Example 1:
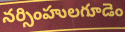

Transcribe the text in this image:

నర్సింహులగూడెం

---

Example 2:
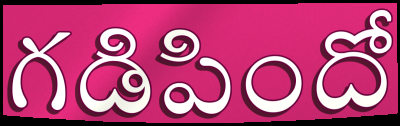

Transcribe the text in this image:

గడిపిందో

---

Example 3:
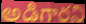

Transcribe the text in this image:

అడిగారని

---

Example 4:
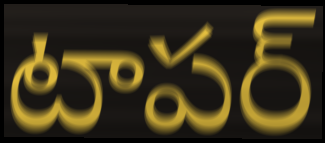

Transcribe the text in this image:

టాపర్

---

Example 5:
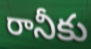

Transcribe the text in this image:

రానీకు